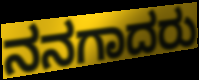
ನನಗಾದರು